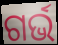
ଗର୍ଭ